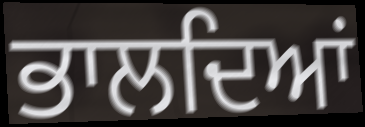
ਭਾਲਦਿਆਂ